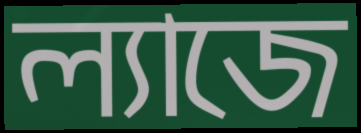
ল্যাজে